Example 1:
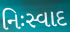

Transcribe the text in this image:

નિઃસ્વાદ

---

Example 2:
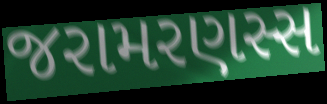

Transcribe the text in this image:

જરામરણસ્સ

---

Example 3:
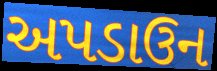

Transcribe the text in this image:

અપડાઉન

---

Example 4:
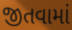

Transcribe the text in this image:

જીતવામાં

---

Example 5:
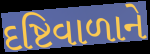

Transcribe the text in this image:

દષ્ટિવાળાને